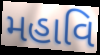
મહાવિ